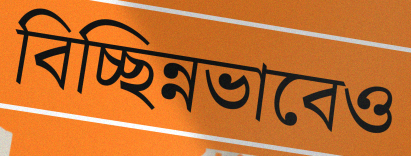
বিচ্ছিন্নভাবেও